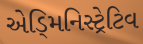
એડ્મિનિસ્ટ્રેટિવ